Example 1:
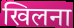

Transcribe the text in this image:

खिलना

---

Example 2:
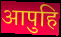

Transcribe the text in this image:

आपुहि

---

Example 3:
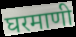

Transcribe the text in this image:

घरमाणी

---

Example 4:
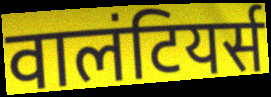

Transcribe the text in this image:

वालंटियर्स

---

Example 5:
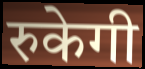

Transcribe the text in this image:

रुकेगी